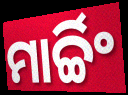
ମାର୍ଚ୍ଚିଂ